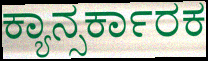
ಕ್ಯಾನ್ಸರ್ಕಾರಕ